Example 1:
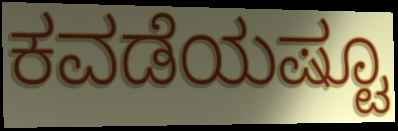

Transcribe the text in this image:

ಕವಡೆಯಷ್ಟೂ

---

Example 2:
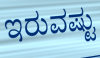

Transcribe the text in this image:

ಇರುವಷ್ಟು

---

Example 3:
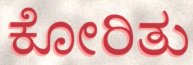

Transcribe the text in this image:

ಕೋರಿತು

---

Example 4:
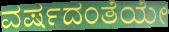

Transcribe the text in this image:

ವರ್ಷದಂತೆಯೇ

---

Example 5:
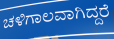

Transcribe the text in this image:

ಚಳಿಗಾಲವಾಗಿದ್ದರೆ